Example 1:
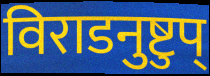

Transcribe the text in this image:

विराडनुष्टुप्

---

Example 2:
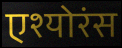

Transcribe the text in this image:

एश्योरंस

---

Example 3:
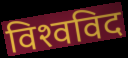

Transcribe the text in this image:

विश्वविद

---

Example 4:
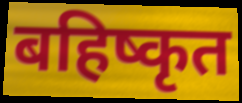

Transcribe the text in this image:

बहिष्कृत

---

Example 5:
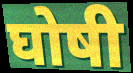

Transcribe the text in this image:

घोषी